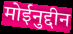
मोईनुद्दीन